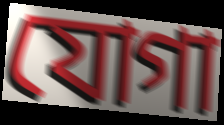
যোগা